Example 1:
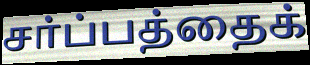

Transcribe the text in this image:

சர்ப்பத்தைக்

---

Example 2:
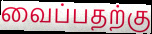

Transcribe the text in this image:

வைப்பதற்கு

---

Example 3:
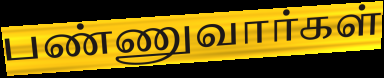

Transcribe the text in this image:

பண்ணுவார்கள்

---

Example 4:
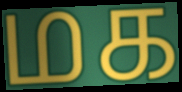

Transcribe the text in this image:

மக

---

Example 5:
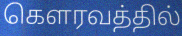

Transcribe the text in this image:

கௌரவத்தில்